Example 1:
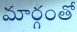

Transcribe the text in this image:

మార్గంతో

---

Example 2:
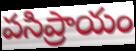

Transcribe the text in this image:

పసిప్రాయం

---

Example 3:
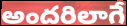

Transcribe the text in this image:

అందరిలాగే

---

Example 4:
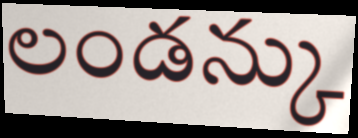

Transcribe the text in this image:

లండన్కు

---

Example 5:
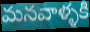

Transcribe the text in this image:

మనవాళ్ళకి